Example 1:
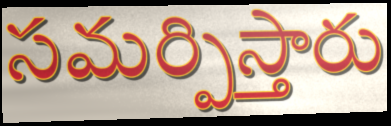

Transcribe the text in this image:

సమర్పిస్తారు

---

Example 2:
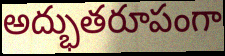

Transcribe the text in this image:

అద్భుతరూపంగా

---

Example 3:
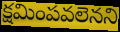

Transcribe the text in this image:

క్షమింపవలెనని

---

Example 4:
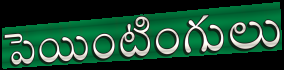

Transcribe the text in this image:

పెయింటింగులు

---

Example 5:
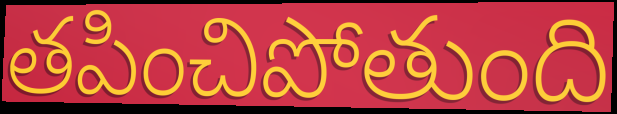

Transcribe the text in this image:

తపించిపోతుంది